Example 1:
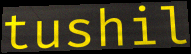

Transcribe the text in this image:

tushil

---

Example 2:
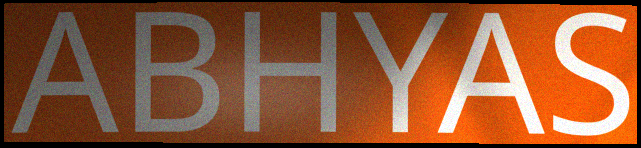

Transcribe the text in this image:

ABHYAS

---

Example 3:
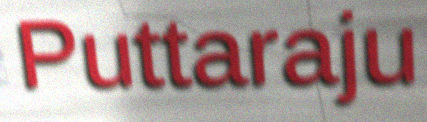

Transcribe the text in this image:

Puttaraju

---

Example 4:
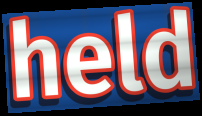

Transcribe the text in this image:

held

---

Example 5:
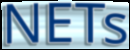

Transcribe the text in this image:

NETs